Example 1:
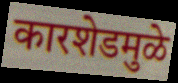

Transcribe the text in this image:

कारशेडमुळे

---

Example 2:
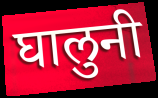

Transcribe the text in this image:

घालुनी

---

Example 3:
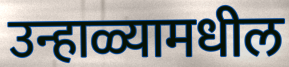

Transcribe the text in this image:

उन्हाळ्यामधील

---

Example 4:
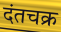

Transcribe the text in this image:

दंतचक्र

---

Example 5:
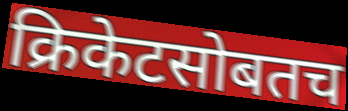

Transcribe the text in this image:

क्रिकेटसोबतच